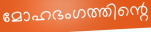
മോഹഭംഗത്തിന്റെ